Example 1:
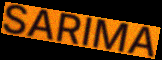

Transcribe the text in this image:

SARIMA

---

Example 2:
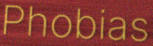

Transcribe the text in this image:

Phobias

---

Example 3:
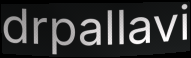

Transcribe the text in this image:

drpallavi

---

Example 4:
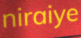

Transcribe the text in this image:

niraiye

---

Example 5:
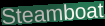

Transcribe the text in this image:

Steamboat